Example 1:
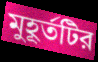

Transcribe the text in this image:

মুহূর্তটির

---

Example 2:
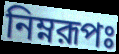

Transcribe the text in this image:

নিম্নরূপঃ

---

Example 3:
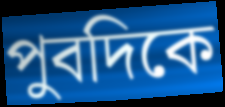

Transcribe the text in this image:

পুবদিকে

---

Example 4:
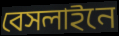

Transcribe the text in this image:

বেসলাইনে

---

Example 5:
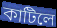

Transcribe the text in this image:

কাটিলে